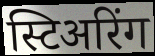
स्टिअरिंग